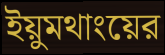
ইয়ুমথাংয়ের